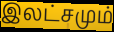
இலட்சமும்